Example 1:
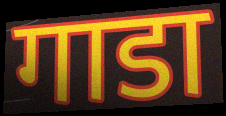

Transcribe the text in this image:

गाडा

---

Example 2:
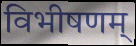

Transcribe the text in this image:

विभीषणम्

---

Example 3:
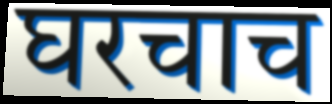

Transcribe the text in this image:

घरचाच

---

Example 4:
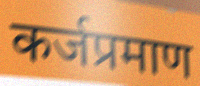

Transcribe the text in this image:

कर्जप्रमाण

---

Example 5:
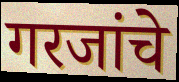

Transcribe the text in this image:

गरजांचे